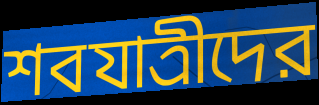
শবযাত্রীদের